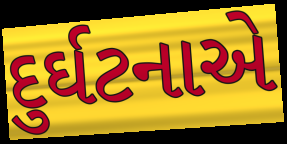
દુર્ઘટનાએ